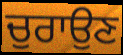
ਚੁਰਾਉਣ